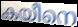
കയീനെ